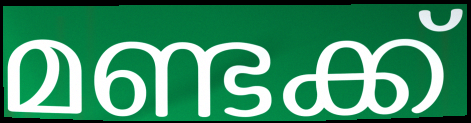
മണ്ടക്ക്